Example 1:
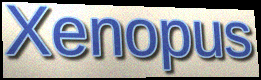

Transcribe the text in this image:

Xenopus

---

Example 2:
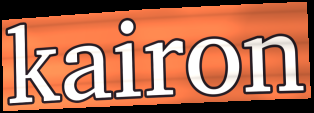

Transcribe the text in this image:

kairon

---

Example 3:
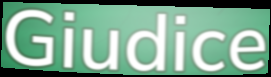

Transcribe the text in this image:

Giudice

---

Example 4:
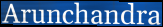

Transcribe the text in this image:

Arunchandra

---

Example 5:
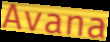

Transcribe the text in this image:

Avana